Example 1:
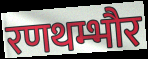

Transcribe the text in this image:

रणथम्भौर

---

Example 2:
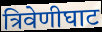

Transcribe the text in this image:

त्रिवेणीघाट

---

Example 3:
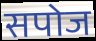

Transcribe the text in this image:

सपोज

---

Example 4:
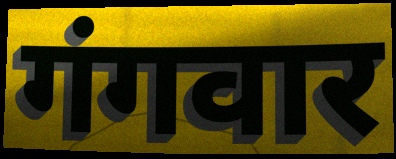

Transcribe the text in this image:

गंगवार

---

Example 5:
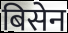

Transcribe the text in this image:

बिसेन